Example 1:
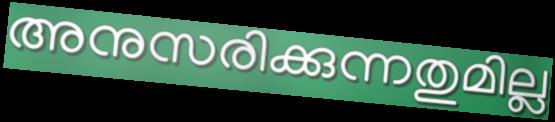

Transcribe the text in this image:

അനുസരിക്കുന്നതുമില്ല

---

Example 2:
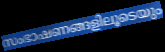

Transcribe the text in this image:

സംഭാഷണങ്ങളിലൂടെയും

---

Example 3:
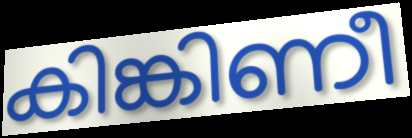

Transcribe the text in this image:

കിങ്കിണീ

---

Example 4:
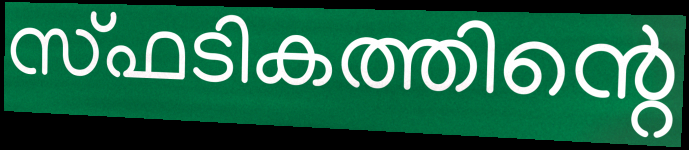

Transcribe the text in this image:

സ്ഫടികത്തിന്റെ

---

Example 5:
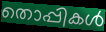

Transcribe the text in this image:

തൊപ്പികൾ